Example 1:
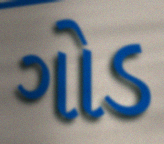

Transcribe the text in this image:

ગોડ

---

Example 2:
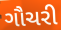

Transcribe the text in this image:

ગૌચરી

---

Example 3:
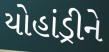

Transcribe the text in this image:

યોહાંડ્રીને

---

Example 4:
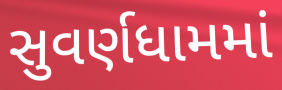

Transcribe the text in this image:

સુવર્ણધામમાં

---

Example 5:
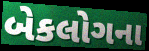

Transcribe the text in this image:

બેકલોગના